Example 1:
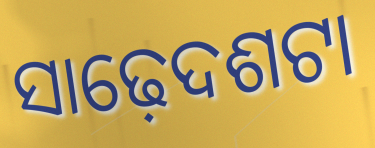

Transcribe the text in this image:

ସାଢ଼େଦଶଟା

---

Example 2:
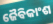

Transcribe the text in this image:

ଜୈବିକାଂଶ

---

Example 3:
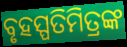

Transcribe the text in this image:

ବୃହସ୍ପତିମିତ୍ରଙ୍କ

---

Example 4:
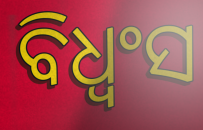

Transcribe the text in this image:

ବିଧ୍ଵଂସ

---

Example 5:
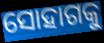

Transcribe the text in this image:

ସୋହାଗକୁ